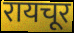
रायचूर